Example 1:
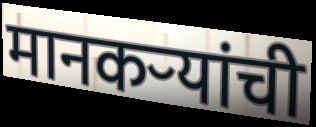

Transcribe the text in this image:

मानकऱ्यांची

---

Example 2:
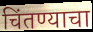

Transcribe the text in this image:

चिंतण्याचा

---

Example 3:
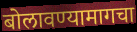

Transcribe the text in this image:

बोलावण्यामागचा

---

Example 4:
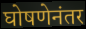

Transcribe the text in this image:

घोषणेनंतर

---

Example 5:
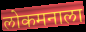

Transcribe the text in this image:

लोकमनाला